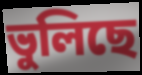
ভুলিছে